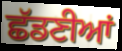
ਛੱਡਣੀਆਂ